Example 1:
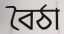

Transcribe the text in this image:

বৈঠা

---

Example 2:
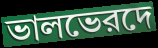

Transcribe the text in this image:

ভালভেরদে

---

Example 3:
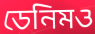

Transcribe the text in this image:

ডেনিমও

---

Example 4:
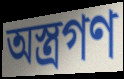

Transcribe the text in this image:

অস্ত্রগণ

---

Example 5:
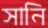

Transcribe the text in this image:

সানি